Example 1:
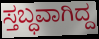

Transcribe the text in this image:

ಸ್ತಬ್ಧವಾಗಿದ್ದ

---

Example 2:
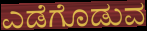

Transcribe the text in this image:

ಎಡೆಗೊಡುವ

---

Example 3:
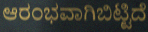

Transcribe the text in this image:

ಆರಂಭವಾಗಿಬಿಟ್ಟಿದೆ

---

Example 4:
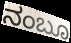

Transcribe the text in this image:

ನಂಬೂ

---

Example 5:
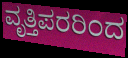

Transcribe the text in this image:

ವೃತ್ತಿಪರರಿಂದ